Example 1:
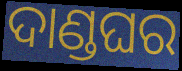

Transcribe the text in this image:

ଦାଣ୍ଡଘର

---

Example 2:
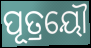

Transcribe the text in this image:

ପୂତ୍ରୟୌ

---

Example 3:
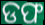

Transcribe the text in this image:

ଡଫ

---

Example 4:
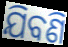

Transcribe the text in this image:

ଯିବଣି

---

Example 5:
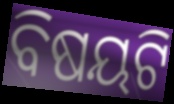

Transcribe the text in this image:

ବିଷୟଟି